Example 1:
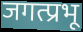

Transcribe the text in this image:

जगत्प्रभू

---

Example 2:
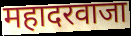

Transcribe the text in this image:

महादरवाजा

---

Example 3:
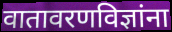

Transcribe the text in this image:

वातावरणविज्ञांना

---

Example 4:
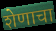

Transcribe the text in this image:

शेणाचा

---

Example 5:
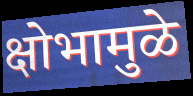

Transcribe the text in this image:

क्षोभामुळे